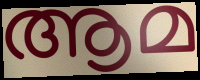
ആമ